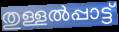
തുള്ളൽപ്പാട്ട്